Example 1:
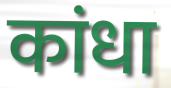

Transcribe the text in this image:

कांधा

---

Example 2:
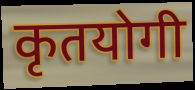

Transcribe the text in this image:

कृतयोगी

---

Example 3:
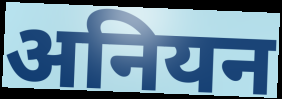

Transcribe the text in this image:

अनियन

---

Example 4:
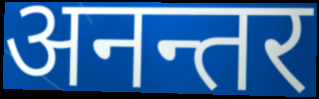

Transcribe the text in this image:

अनन्तर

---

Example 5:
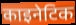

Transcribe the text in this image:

काइनेटिक